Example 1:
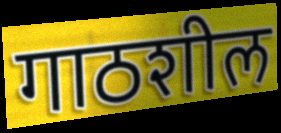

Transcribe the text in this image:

गाठशील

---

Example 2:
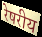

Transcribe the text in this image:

रेषरीय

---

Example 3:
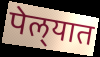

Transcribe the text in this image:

पेल्यात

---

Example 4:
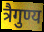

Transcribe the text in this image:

त्रैगुण्य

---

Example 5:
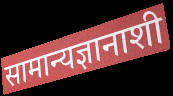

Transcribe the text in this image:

सामान्यज्ञानाशी